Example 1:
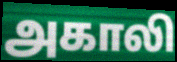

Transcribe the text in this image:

அகாலி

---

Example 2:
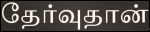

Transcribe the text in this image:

தேர்வுதான்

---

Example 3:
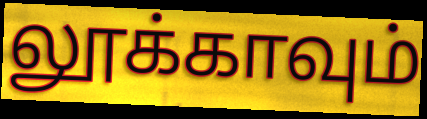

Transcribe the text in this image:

லூக்காவும்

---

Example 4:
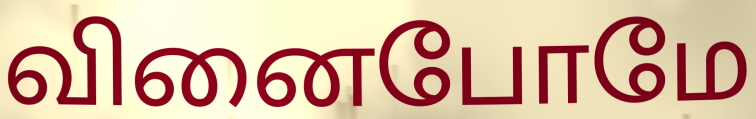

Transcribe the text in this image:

வினைபோமே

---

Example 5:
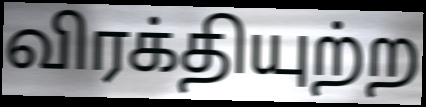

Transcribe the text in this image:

விரக்தியுற்ற